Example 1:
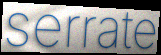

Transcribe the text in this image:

serrate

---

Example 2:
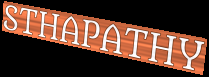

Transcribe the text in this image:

STHAPATHY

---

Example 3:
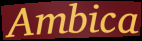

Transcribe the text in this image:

Ambica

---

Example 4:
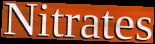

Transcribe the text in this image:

Nitrates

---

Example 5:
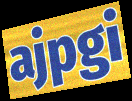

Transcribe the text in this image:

ajpgi